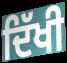
ਦਿੱਖੀ